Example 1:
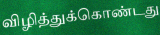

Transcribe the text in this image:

விழித்துக்கொண்டது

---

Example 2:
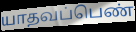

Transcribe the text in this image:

யாதவப்பெண்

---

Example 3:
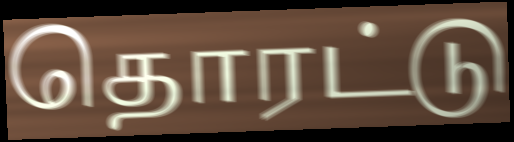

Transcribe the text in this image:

தொரட்டு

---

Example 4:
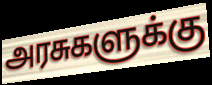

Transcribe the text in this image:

அரசுகளுக்கு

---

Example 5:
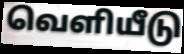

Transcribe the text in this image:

வெளியீடு